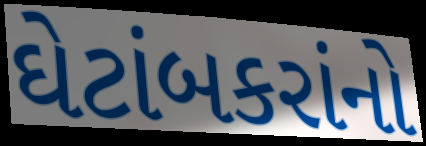
ઘેટાંબકરાંનો